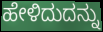
ಹೇಳಿದುದನ್ನು